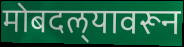
मोबदल्यावरून